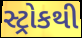
સ્ટ્રોકથી